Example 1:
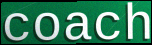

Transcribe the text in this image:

coach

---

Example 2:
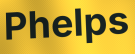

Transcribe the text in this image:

Phelps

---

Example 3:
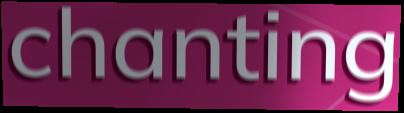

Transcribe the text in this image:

chanting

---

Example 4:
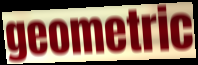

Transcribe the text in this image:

geometric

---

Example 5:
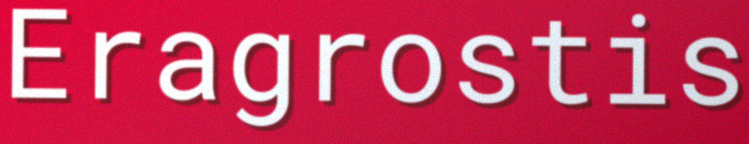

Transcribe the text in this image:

Eragrostis